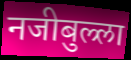
नजीबुल्ला